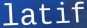
latif